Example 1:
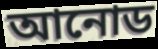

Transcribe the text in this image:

আনোড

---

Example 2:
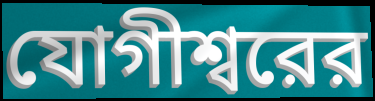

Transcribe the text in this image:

যোগীশ্বরের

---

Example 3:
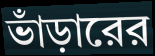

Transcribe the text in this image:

ভাঁড়ারের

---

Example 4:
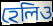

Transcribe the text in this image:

হেলিও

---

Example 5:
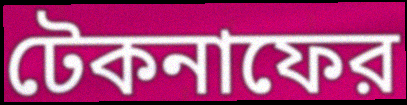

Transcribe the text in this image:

টেকনাফের